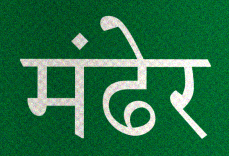
मंढेर